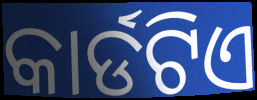
କାର୍ଡଟିଏ